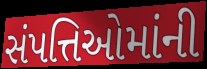
સંપત્તિઓમાંની